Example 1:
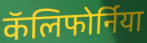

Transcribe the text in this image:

कॅलिफोर्निया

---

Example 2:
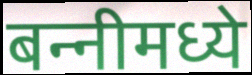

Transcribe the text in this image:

बन्नीमध्ये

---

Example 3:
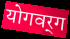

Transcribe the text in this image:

योगवर्ग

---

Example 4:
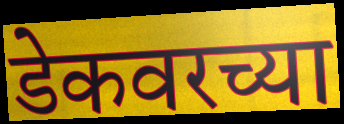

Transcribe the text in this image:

डेकवरच्या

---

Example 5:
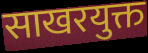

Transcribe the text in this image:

साखरयुक्त